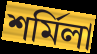
শৰ্মিলা